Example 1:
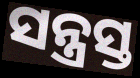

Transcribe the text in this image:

ସନ୍ତ୍ରସ୍ତ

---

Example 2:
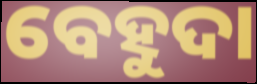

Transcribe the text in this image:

ବେହୁଦା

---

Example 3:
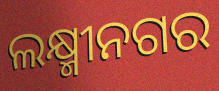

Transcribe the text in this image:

ଲକ୍ଷ୍ମୀନଗର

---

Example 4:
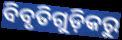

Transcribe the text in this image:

ବିବୃତିଗୁଡ଼ିକରୁ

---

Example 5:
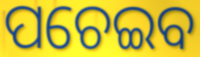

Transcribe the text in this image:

ପଚେଇବ